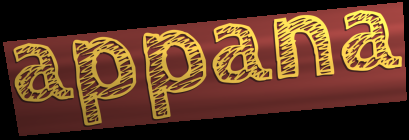
appana